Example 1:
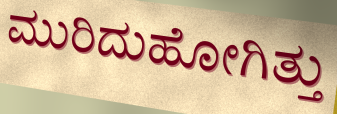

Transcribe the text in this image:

ಮುರಿದುಹೋಗಿತ್ತು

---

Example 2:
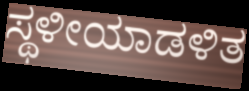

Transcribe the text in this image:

ಸ್ಥಳೀಯಾಡಳಿತ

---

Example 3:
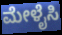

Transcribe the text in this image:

ಮೇಳೈಸಿ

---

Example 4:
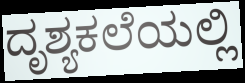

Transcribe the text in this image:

ದೃಶ್ಯಕಲೆಯಲ್ಲಿ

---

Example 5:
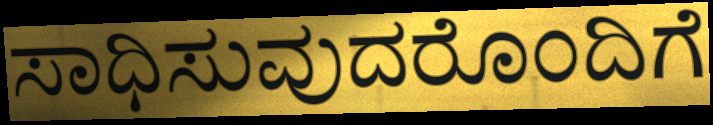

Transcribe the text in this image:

ಸಾಧಿಸುವುದರೊಂದಿಗೆ